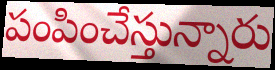
పంపించేస్తున్నారు